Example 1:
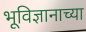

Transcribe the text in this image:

भूविज्ञानाच्या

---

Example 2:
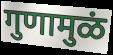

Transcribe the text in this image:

गुणामुळं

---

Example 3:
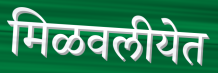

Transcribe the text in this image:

मिळवलीयेत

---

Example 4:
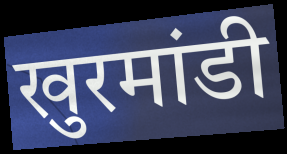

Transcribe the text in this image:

खुरमांडी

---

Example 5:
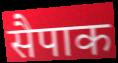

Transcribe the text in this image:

सैपाक